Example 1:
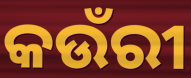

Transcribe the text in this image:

କଉଁରୀ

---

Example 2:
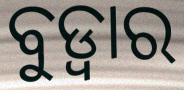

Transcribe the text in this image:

ବୁଡ୍ୱାର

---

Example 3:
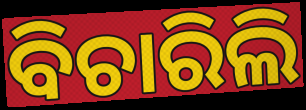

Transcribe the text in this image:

ବିଚାରିଲି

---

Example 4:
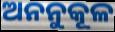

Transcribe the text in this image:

ଅନନୁକୂଳ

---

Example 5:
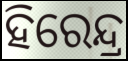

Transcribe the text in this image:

ହିରେନ୍ଦ୍ର